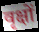
वृक्षों